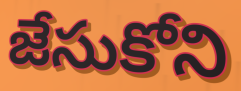
జేసుకోని